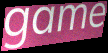
game